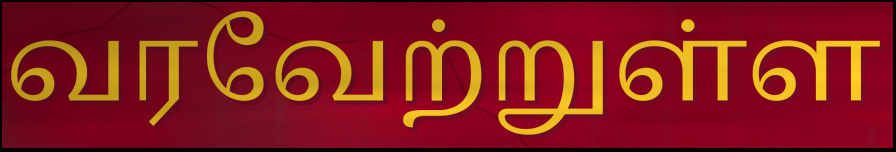
வரவேற்றுள்ள